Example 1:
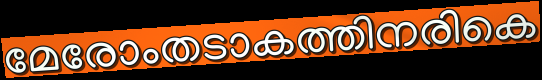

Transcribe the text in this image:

മേരോംതടാകത്തിനരികെ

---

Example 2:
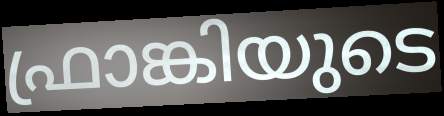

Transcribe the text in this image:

ഫ്രാങ്കിയുടെ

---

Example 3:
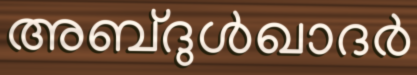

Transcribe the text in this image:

അബ്ദുൾഖാദർ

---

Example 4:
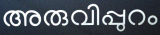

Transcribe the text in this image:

അരുവിപ്പുറം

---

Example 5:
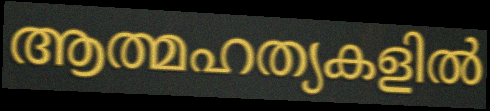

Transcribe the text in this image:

ആത്മഹത്യകളിൽ